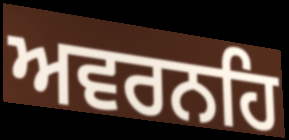
ਅਵਰਨਹਿ